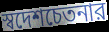
স্বদেশচেতনার